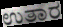
ಉತಾರ